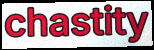
chastity